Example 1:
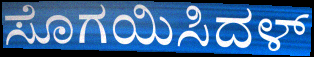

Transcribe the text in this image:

ಸೊಗಯಿಸಿದಳ್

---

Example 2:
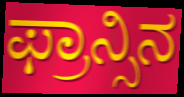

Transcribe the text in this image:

ಫ್ರಾನ್ಸಿನ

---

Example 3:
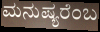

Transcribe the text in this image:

ಮನುಷ್ಯರೆಂಬ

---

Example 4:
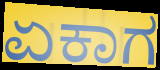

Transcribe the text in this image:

ಏಕಾಗ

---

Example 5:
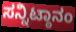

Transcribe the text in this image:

ಸನ್ನಿಟ್ಠಾನಂ